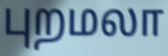
புறமலா